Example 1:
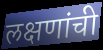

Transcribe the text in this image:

लक्षणांची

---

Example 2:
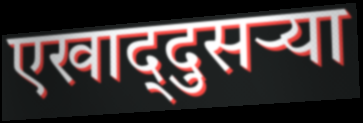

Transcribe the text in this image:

एखाद्‌दुसऱ्या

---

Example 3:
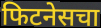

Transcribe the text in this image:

फिटनेसचा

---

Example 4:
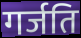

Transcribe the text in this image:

गर्जति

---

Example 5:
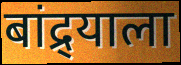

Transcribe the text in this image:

बांद्र्याला